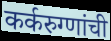
कर्करुग्णांची